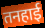
तनहाई